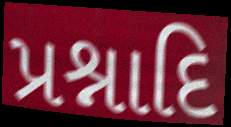
પ્રશ્નાદિ